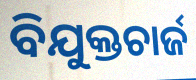
ବିଯୁକ୍ତଚାର୍ଜ